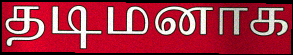
தடிமனாக